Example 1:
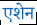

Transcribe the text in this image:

एशेन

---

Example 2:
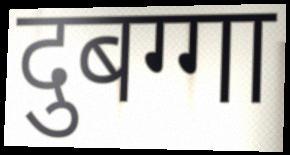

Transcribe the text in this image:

दुबग्गा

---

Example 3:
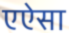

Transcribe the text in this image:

एऐसा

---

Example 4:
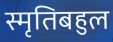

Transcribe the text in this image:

स्मृतिबहुल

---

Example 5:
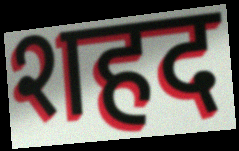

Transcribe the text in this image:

शहद